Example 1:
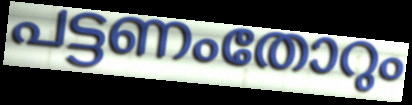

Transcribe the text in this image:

പട്ടണംതോറും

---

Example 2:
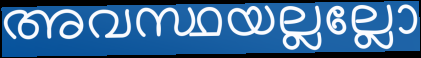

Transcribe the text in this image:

അവസ്ഥയല്ലല്ലോ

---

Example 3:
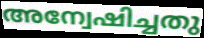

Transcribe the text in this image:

അന്വേഷിച്ചതു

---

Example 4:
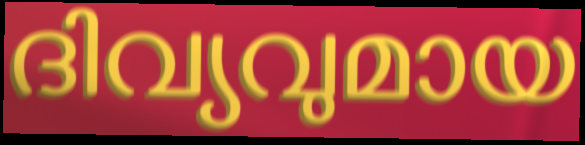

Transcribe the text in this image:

ദിവ്യവുമായ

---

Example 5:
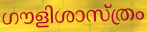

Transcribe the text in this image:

ഗൗളിശാസ്ത്രം